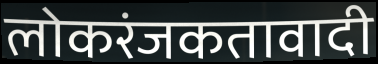
लोकरंजकतावादी